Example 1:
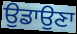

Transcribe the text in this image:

ਉਡਾਉਣਾ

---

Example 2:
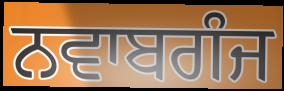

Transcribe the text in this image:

ਨਵਾਬਗੰਜ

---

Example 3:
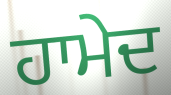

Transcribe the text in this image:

ਹਾਮੇਦ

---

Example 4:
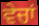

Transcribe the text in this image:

ਵੇਚਾਂ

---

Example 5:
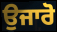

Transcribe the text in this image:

ਉਜਾਰੋ